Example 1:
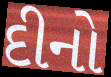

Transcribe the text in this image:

દીનો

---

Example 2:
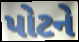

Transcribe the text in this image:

પોટને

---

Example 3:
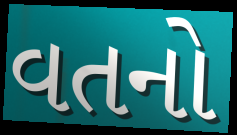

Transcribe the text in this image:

વતનો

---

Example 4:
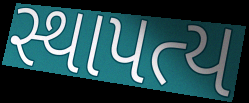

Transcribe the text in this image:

સ્થાપત્ય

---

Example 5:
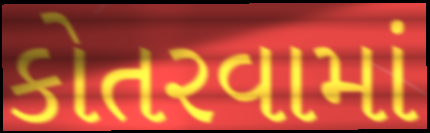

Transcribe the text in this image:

કોતરવામાં